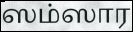
ஸம்ஸார